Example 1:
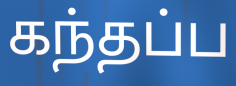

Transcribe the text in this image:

கந்தப்ப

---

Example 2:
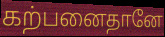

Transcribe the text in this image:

கற்பனைதானே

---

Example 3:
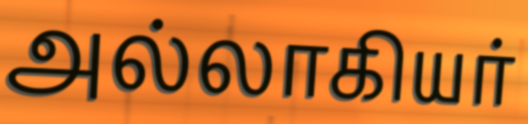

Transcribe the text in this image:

அல்லாகியர்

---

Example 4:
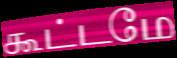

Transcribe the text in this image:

கூட்டமே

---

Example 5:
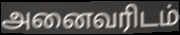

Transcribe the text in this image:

அனைவரிடம்